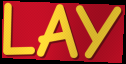
LAY